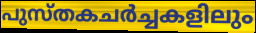
പുസ്തകചർച്ചകളിലും